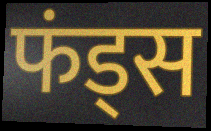
फंड्स